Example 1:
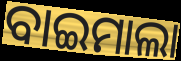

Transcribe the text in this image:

ବାଇମାଲା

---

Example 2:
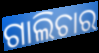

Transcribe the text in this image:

ଗାଲିଚାର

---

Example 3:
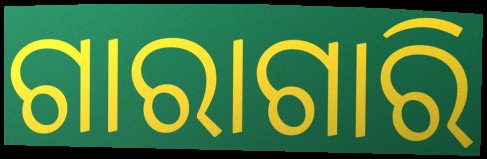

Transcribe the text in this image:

ଗାରାଗାରି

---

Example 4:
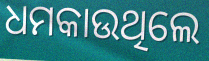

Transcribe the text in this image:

ଧମକାଉଥିଲେ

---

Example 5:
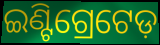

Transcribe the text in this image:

ଇଣ୍ଟିଗ୍ରେଟେଡ଼